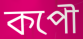
কপৌ